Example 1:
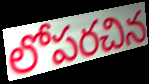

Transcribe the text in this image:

లోపరచిన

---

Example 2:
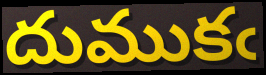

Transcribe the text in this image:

దుముకఁ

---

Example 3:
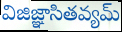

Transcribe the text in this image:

విజిజ్ఞాసితవ్యమ్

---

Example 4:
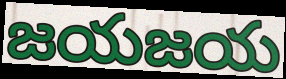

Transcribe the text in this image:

జయజయ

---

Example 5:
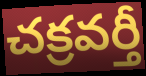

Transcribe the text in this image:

చక్రవర్తీ